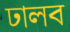
ঢালব